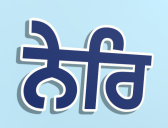
ਨੇਰਿ